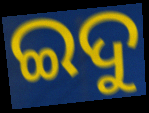
ଇଦୁ